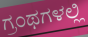
ಗ್ರಂಥಗಳಲ್ಲಿ